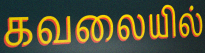
கவலையில்